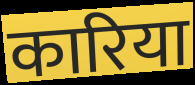
कारिया